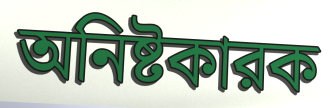
অনিষ্টকারক